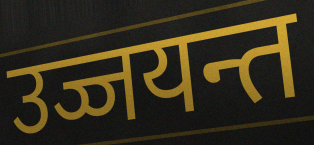
उज्जयन्त